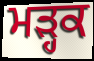
ਮੜ੍ਹਕ